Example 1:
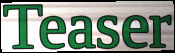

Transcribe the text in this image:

Teaser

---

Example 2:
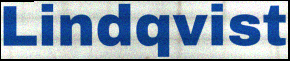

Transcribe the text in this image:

Lindqvist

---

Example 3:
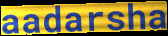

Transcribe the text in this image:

aadarsha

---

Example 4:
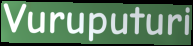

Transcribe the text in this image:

Vuruputuri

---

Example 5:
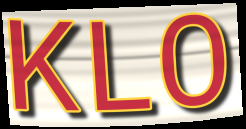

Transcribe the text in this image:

KLO